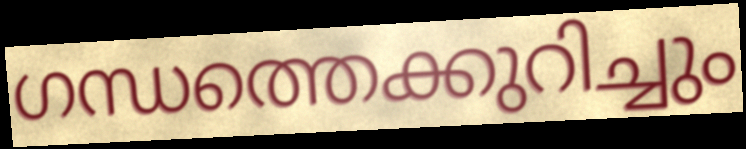
ഗന്ധത്തെക്കുറിച്ചും